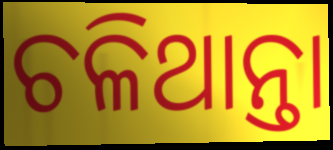
ଚଳିଥାନ୍ତା